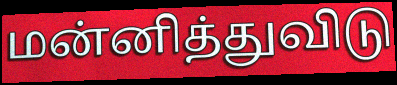
மன்னித்துவிடு